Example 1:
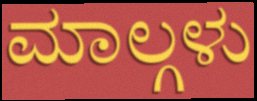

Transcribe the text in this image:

ಮಾಲ್ಗಳು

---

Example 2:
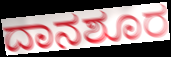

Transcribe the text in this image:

ದಾನಶೂರ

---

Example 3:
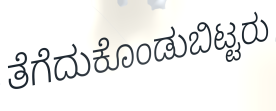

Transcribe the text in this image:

ತೆಗೆದುಕೊಂಡುಬಿಟ್ಟರು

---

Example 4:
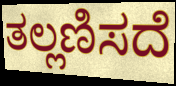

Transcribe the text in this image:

ತಲ್ಲಣಿಸದೆ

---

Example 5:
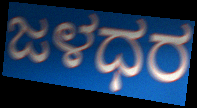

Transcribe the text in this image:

ಜಳಧರ